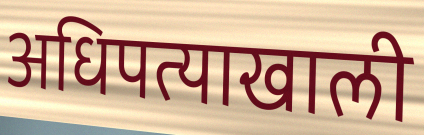
अधिपत्‍याखाली